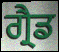
ਗ੍ਰੈਡ